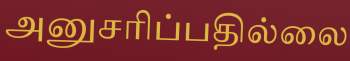
அனுசரிப்பதில்லை